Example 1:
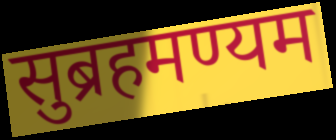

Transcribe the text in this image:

सुब्रहमण्यम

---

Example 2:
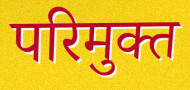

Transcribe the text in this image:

परिमुक्त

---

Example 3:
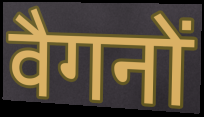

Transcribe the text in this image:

वैगनों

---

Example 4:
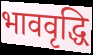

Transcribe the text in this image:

भाववृद्धि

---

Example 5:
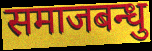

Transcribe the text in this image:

समाजबन्धु